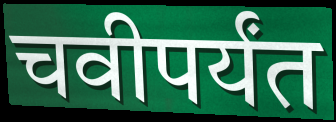
चवीपर्यंत